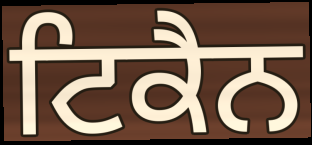
ਟਿਕੈਨ